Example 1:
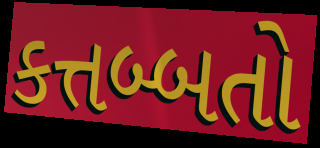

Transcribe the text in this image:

કત્તબ્બતો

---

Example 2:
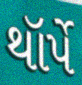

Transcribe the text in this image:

થૉર્પે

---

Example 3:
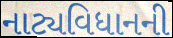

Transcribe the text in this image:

નાટ્યવિધાનની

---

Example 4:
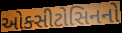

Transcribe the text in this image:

ઓક્સીટોસિનનો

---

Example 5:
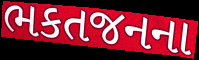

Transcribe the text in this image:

ભકતજનના